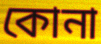
কোনা